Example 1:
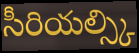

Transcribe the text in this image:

సీరియల్స్కి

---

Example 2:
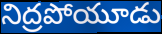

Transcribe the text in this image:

నిద్రపోయూడు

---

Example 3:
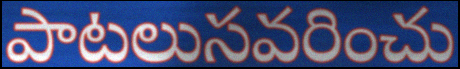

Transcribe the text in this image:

పాటలుసవరించు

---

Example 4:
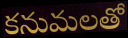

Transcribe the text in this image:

కనుమలతో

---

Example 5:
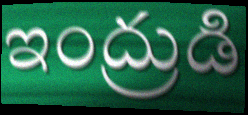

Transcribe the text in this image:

ఇంద్రుడి